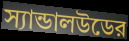
স্যান্ডালউডের